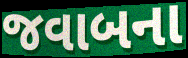
જવાબના